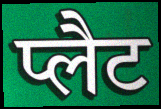
प्लैट